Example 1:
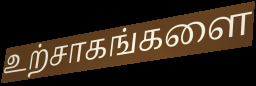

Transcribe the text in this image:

உற்சாகங்களை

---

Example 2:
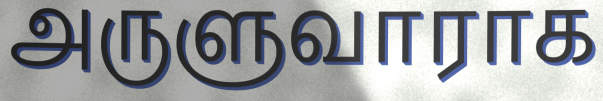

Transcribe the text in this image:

அருளுவாராக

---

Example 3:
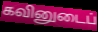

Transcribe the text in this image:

கவினுடைப்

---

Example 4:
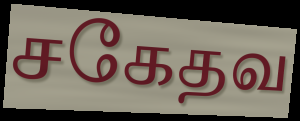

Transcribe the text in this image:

சகேதவ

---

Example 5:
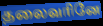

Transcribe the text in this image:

தலைவரினே